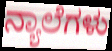
ನ್ಯಾಲೆಗಳು